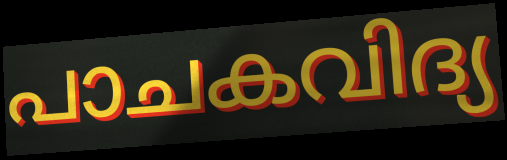
പാചകവിദ്യ